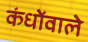
कंधोंवाले